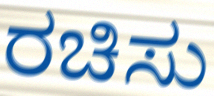
ರಚಿಸು